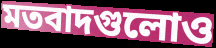
মতবাদগুলোও